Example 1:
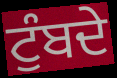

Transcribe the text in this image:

ਟੁੰਬਦੇ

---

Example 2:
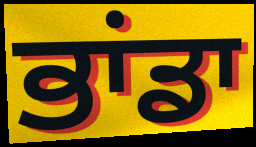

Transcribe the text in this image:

ਭਾਂਡਾ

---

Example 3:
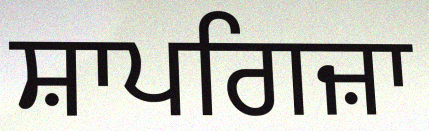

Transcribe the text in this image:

ਸ਼ਾਪਗਿਜ਼ਾ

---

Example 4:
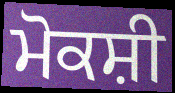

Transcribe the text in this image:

ਮੋਕਸ਼ੀ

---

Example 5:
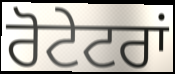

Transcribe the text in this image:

ਰੋਟੇਟਰਾਂ